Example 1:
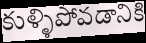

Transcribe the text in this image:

కుళ్ళిపోవడానికి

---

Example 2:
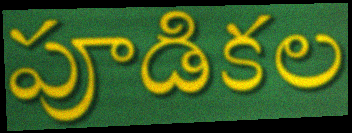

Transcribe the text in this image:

పూడికల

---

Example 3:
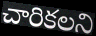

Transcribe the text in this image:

చారికలని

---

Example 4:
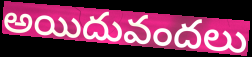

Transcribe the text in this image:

అయిదువందలు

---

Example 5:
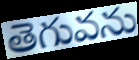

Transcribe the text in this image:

తెగువను